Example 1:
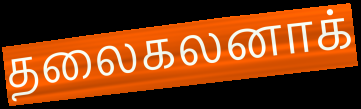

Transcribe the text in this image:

தலைகலனாக்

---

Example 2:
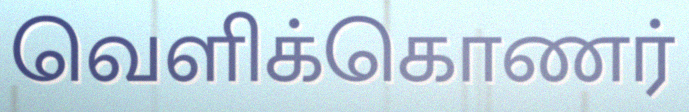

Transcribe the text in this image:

வெளிக்கொணர்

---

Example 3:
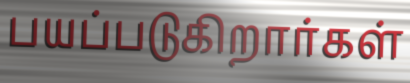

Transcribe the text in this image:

பயப்படுகிறார்கள்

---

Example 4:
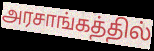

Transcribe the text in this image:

அரசாங்கத்தில்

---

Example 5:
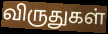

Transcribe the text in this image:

விருதுகள்